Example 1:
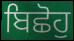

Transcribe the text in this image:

ਬਿਛੋਹੁ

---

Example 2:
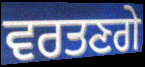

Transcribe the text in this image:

ਵਰਤਣਗੇ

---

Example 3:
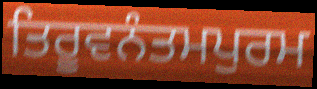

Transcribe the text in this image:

ਤਿਰੂਵਨੰਤਮਪੁਰਮ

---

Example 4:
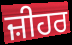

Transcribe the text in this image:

ਜ਼ੀਹਰ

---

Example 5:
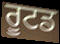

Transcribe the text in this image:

ਰੂਟਡ